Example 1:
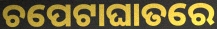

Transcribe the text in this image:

ଚପେଟାଘାତରେ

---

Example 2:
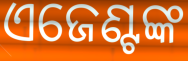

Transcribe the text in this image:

ଏଜେଣ୍ଟଙ୍କ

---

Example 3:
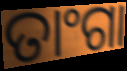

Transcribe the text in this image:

ତାଂଗା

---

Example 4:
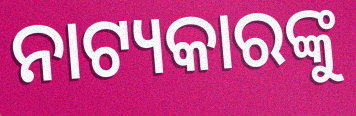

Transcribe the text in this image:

ନାଟ୍ୟକାରଙ୍କୁ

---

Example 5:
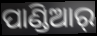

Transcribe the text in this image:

ପାଣ୍ଡିଆର୍